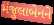
મંજુલાબેનને